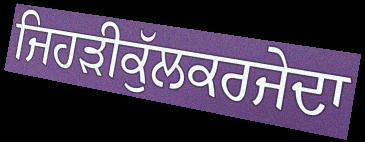
ਜਿਹੜੀਕੁੱਲਕਰਜੇਦਾ